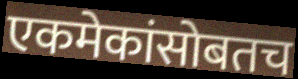
एकमेकांसोबतच